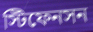
স্টিফেনসন